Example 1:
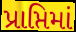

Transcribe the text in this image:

પ્રાપ્તિમાં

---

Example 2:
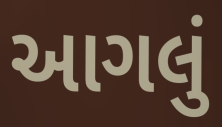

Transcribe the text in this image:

આગલું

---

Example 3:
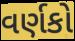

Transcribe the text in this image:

વર્ણકો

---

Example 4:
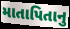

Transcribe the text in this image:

માતાપિતાનુ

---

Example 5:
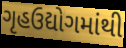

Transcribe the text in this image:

ગૃહઉદ્યોગમાંથી